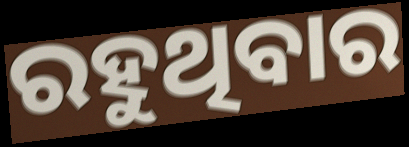
ରହୁଥିବାର